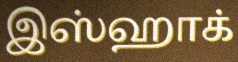
இஸ்ஹாக்